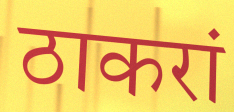
ठाकरां